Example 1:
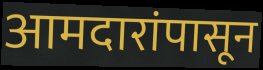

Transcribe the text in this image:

आमदारांपासून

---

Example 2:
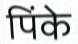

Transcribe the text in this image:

पिंके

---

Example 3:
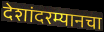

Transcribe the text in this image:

देशांदरम्यानचा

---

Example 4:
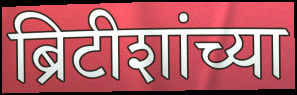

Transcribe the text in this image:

ब्रिटीशांच्या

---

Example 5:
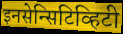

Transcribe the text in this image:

इनसेन्सिटिव्हिटी